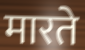
मारते